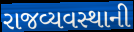
રાજવ્યવસ્થાની